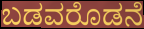
ಬಡವರೊಡನೆ